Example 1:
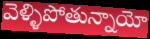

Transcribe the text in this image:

వెళ్ళిపోతున్నాయో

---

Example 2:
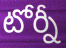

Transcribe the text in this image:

టోర్నీ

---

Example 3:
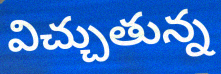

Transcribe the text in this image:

విచ్చుతున్న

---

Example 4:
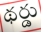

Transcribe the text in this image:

థర్డు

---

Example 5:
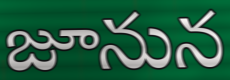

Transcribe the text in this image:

జూనున